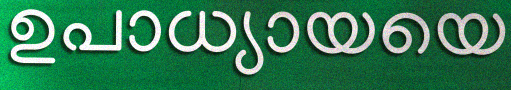
ഉപാധ്യായയെ